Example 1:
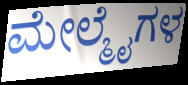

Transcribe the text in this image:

ಮೇಲ್ಮೈಗಳ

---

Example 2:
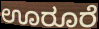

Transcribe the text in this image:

ಊರೂರೆ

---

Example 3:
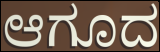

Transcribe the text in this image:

ಆಗೂದ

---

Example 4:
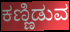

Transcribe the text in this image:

ಕಣ್ಣಿಡುವ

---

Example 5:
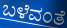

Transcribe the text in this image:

ಬಳೆವಂತೆ